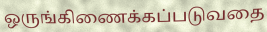
ஒருங்கிணைக்கப்படுவதை